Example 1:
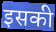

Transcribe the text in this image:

इसकी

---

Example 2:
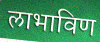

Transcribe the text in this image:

लाभाविण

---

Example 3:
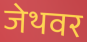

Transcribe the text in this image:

जेथवर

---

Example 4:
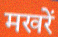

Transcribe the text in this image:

मखरें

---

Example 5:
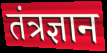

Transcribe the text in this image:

तंत्रज्ञान